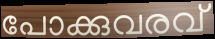
പോക്കുവരവ്